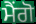
ਮੈਂਗੋ